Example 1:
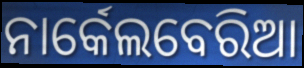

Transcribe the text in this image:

ନାର୍କେଲବେରିଆ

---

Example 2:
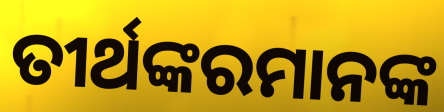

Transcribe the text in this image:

ତୀର୍ଥଙ୍କରମାନଙ୍କ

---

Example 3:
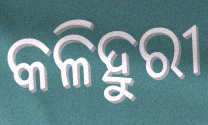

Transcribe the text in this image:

କଳିହୁରୀ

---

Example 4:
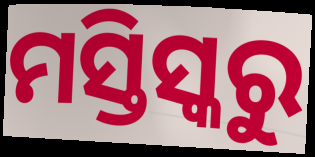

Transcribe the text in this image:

ମସ୍ତିସ୍କରୁ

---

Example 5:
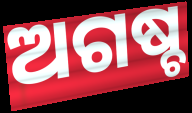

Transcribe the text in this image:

ଅଗଷ୍ଚ